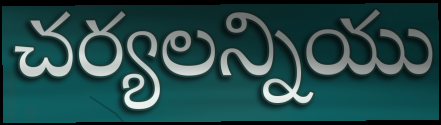
చర్యలన్నియు